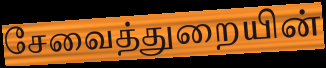
சேவைத்துறையின்